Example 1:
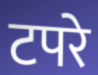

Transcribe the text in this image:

टपरे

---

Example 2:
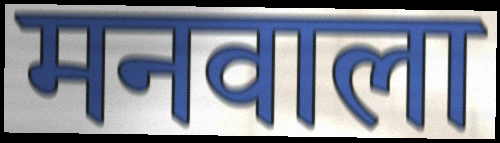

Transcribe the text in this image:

मनवाला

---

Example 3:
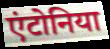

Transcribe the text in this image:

एंटोनिया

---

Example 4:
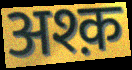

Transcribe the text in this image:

अश्क़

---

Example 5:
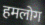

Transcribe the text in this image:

हमलोग